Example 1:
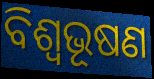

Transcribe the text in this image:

ବିଶ୍ବଭୂଷଣ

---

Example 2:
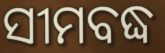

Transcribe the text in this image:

ସୀମବଦ୍ଧ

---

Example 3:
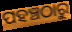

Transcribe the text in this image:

ପହଞ୍ଚଠାରୁ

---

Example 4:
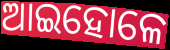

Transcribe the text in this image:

ଆଇହୋଳେ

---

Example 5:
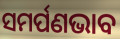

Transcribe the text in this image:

ସମର୍ପଣଭାବ